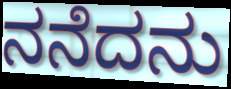
ನನೆದನು